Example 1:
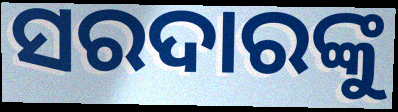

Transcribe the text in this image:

ସରଦାରଙ୍କୁ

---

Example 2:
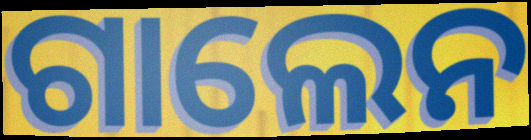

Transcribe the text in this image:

ଗାଲେନ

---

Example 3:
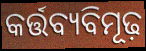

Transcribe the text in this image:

କର୍ତ୍ତବ୍ୟବିମୂଢ଼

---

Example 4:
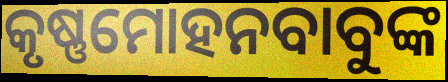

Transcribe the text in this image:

କୃଷ୍ଣମୋହନବାବୁଙ୍କ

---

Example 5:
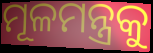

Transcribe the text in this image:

ମୂଳମନ୍ତ୍ରକୁ